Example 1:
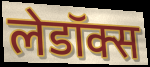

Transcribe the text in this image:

लेडॉक्स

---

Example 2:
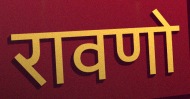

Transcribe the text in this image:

रावणो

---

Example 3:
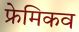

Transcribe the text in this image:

फ्रेमिकव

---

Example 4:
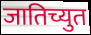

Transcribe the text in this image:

जातिच्युत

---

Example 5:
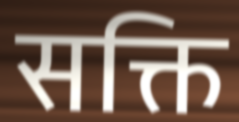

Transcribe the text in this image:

सक्ति